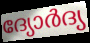
ദ്യോർദ്യ